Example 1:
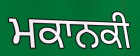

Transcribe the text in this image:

ਮਕਾਨਕੀ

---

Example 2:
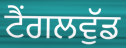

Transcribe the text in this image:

ਟੈਂਗਲਵੁੱਡ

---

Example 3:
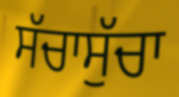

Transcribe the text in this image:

ਸੱਚਾਸੁੱਚਾ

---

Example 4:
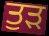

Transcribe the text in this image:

ਤੁੜ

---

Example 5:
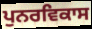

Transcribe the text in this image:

ਪੁਨਰਵਿਕਾਸ